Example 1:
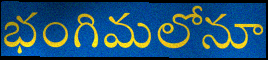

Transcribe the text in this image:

భంగిమలోనూ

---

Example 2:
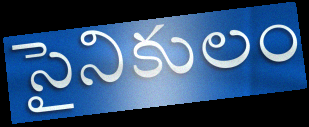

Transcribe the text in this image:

సైనికులం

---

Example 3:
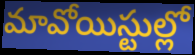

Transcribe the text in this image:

మావోయిస్టుల్లో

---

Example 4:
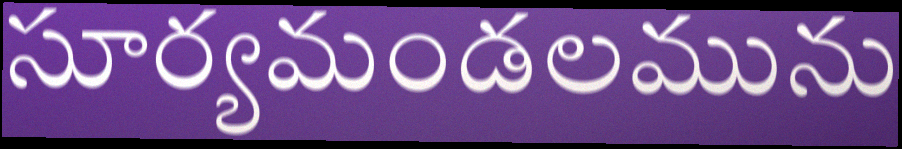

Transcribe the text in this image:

సూర్యమండలమును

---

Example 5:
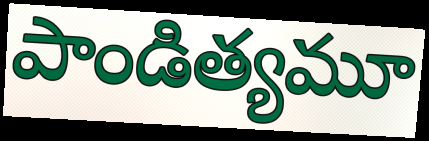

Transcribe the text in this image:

పాండిత్యమూ